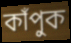
কাঁপুক